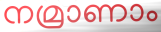
നമ്രാണാം